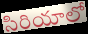
సిరియాలో